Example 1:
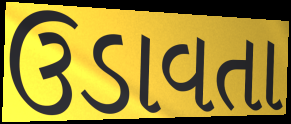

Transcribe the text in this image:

ઉડાવતા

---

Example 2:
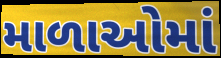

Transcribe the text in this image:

માળાઓમાં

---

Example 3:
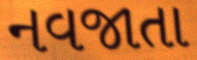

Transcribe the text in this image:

નવજાતા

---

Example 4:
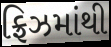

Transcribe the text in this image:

ફ્રિઝમાંથી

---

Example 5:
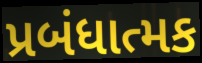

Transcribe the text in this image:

પ્રબંધાત્મક